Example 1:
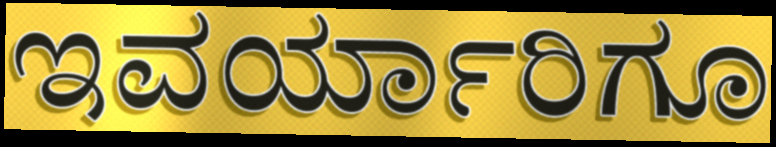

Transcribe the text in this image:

ಇವರ್ಯಾರಿಗೂ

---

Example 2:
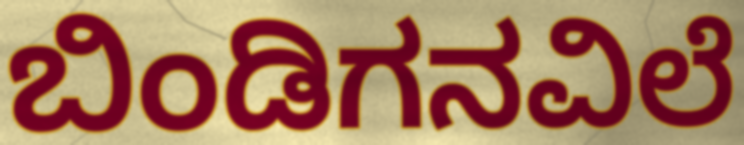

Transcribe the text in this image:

ಬಿಂಡಿಗನವಿಲೆ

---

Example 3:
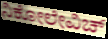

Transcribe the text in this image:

ನಿಕೋಲೇವಿಚ್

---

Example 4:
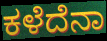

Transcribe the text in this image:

ಕಳೆದೆನಾ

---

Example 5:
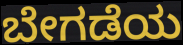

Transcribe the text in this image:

ಬೇಗಡೆಯ